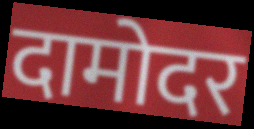
दामोदर